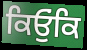
ਕਿਓੁਂਕਿ